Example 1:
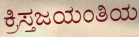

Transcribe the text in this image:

ಕ್ರಿಸ್ತಜಯಂತಿಯ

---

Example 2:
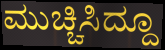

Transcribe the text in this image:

ಮುಚ್ಚಿಸಿದ್ದೂ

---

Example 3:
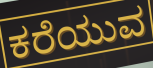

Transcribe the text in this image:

ಕರೆಯುವ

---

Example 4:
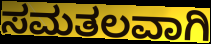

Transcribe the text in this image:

ಸಮತಲವಾಗಿ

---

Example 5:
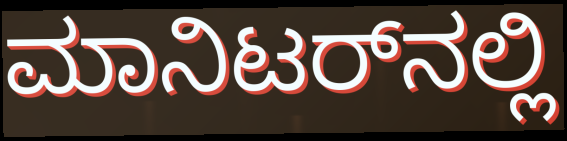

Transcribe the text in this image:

ಮಾನಿಟರ್‌ನಲ್ಲಿ